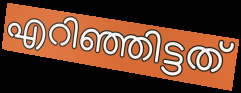
എറിഞ്ഞിട്ടത്